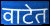
वाटेत